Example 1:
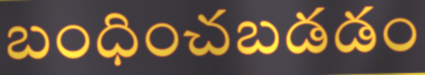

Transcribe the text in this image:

బంధించబడడం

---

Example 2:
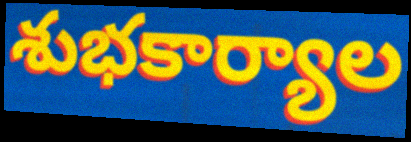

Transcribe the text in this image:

శుభకార్యాల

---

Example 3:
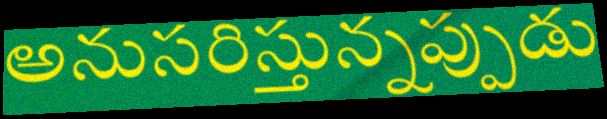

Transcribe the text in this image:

అనుసరిస్తున్నప్పుడు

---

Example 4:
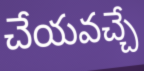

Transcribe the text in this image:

చేయవచ్చే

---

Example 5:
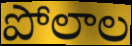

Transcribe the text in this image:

పోలాల